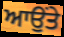
ਆਉਂਤੇ